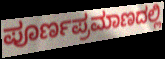
ಪೂರ್ಣಪ್ರಮಾಣದಲ್ಲಿ